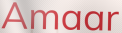
Amaar